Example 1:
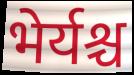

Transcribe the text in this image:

भेर्यश्च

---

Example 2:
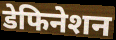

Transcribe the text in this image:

डेफिनेशन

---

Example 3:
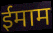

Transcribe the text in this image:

ईमाम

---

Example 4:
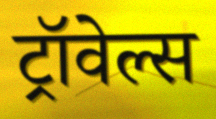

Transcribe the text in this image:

ट्रॉवेल्स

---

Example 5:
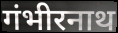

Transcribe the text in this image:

गंभीरनाथ